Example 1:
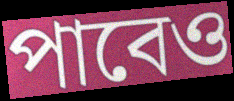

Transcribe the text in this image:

পাবেও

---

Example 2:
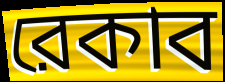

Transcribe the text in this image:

রেকাব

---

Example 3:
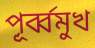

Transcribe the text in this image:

পূর্ব্বমুখ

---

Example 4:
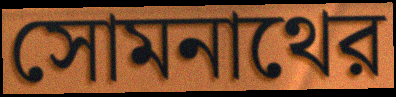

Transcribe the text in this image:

সোমনাথের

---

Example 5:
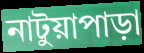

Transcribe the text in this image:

নাটুয়াপাড়া